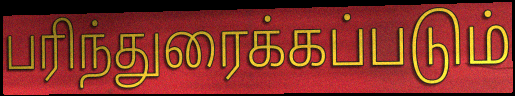
பரிந்துரைக்கப்படும்